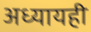
अध्यायही